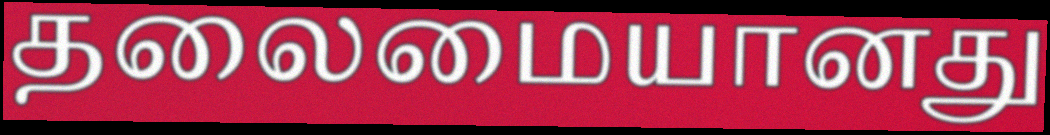
தலைமையானது